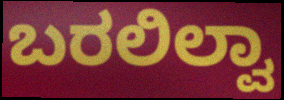
ಬರಲಿಲ್ವಾ